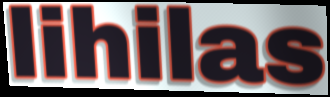
lihilas